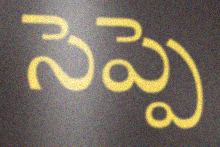
సెప్పె